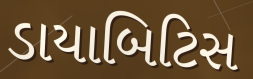
ડાયાબિટિસ